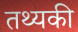
तथ्यकी